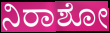
ನಿರಾಶೋ